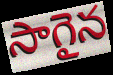
సాగైన